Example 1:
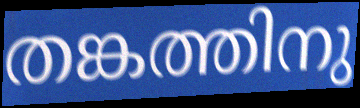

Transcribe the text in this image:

തങ്കത്തിനു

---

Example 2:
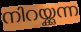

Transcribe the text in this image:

നിറയ്ക്കുന്ന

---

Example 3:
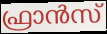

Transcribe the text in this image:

ഫ്രാൻസ്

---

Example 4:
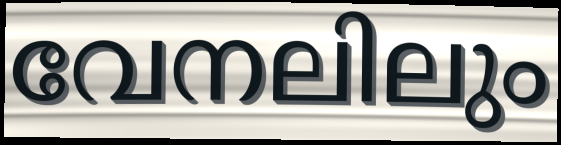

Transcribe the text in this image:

വേനലിലും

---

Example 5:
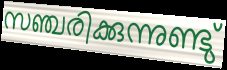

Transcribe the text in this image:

സഞ്ചരിക്കുന്നുണ്ടു്